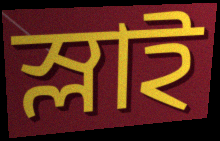
স্লাই